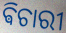
ଵିଚାରୀ